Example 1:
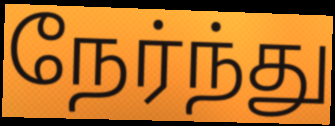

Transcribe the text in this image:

நேர்ந்து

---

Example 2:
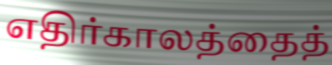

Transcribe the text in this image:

எதிர்காலத்தைத்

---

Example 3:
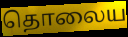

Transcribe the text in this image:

தொலைய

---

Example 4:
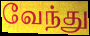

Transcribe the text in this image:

வேந்து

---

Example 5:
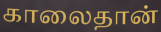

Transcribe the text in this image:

காலைதான்